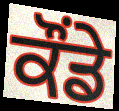
ਕੌਂਡੇ